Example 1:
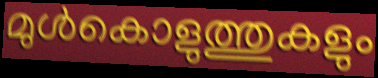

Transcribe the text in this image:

മുൾകൊളുത്തുകളും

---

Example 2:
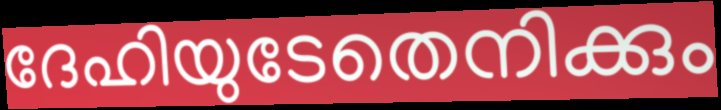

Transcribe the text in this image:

ദേഹിയുടേതെനിക്കും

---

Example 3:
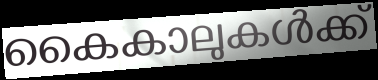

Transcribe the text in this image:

കൈകാലുകൾക്ക്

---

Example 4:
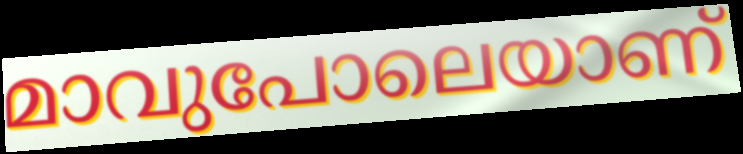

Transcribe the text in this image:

മാവുപോലെയാണ്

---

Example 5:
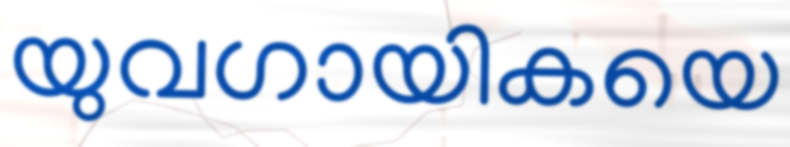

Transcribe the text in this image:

യുവഗായികയെ